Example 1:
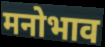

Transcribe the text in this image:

मनोभाव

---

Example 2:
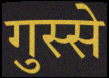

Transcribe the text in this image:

गुस्‍से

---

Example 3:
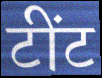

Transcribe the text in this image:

टींट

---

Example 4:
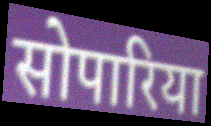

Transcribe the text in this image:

सोपारिया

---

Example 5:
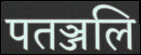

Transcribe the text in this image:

पतञ्जलि